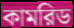
কামরিড